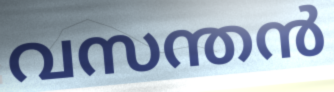
വസന്തൻ